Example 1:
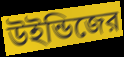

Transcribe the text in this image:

উইন্ডিজের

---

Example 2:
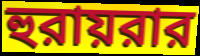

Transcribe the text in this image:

হুরায়রার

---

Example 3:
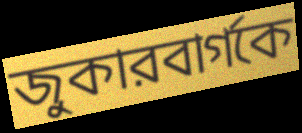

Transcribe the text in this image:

জুকারবার্গকে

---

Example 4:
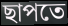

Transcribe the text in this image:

ছাপতে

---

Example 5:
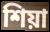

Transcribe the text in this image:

শিয়া